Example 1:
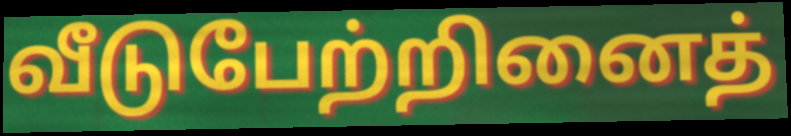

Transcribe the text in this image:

வீடுபேற்றினைத்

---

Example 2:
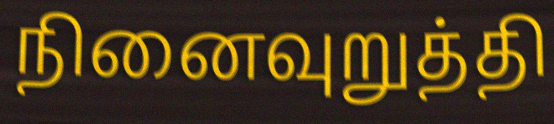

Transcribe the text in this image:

நினைவுறுத்தி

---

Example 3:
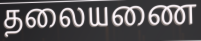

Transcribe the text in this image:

தலையணை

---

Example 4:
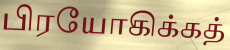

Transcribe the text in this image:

பிரயோகிக்கத்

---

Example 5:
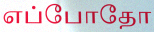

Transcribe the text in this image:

எப்போதோ